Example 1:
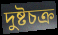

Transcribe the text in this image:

দুষ্টচক্র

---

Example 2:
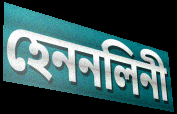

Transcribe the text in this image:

হেননলিনী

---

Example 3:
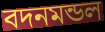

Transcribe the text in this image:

বদনমন্ডল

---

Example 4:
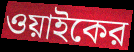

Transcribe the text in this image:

ওয়াইকের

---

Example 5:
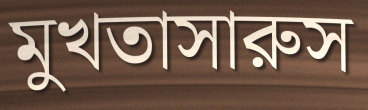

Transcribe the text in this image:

মুখতাসারুস